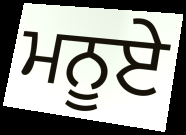
ਮਨੂਏ